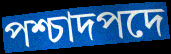
পশ্চাদপদে